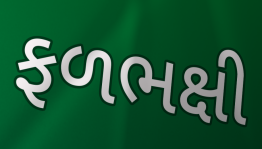
ફળભક્ષી